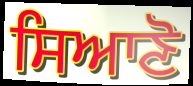
ਸਿਆਣੋ